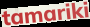
tamariki